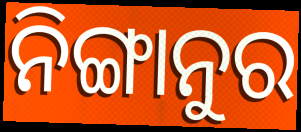
ନିଙ୍ଗାନୁର